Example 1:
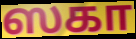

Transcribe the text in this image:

ஸகா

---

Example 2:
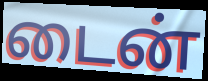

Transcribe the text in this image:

டைன்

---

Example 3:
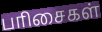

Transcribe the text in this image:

பரிசைகள்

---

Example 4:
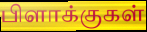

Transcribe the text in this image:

பிளாக்குகள்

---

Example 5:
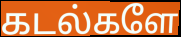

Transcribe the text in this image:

கடல்களே